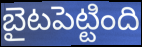
బైటపెట్టింది